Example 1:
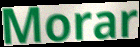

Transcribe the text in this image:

Morar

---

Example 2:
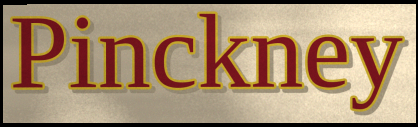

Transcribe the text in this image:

Pinckney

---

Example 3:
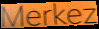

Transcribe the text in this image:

Merkez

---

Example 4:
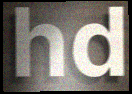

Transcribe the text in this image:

hd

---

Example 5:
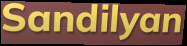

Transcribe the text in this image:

Sandilyan